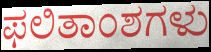
ಫಲಿತಾಂಶಗಳು